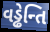
વડ્ઢેન્તિ